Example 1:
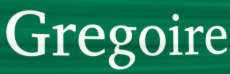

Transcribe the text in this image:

Gregoire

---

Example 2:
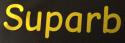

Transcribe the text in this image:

Suparb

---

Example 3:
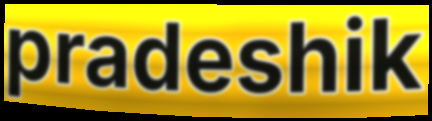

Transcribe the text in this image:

pradeshik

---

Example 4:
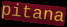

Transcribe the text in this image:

pitana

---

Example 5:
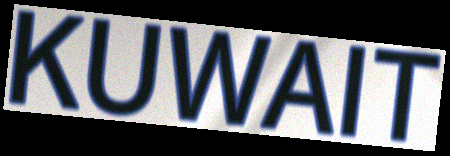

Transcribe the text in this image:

KUWAIT